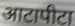
आटापीटा